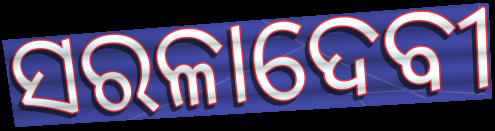
ସରଳାଦେବୀ